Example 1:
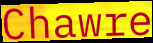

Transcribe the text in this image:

Chawre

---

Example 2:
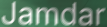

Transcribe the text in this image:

Jamdar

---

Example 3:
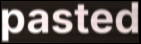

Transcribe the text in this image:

pasted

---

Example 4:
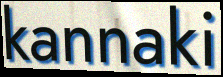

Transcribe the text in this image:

kannaki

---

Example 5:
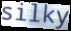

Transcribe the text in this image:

silky